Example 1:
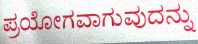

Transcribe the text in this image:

ಪ್ರಯೋಗವಾಗುವುದನ್ನು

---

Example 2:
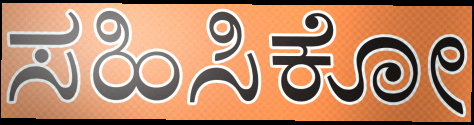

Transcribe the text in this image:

ಸಹಿಸಿಕೋ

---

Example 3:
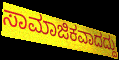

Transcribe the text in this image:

ಸಾಮಾಜಿಕವಾದದ್ದು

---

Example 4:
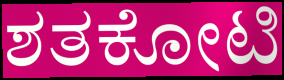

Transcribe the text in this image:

ಶತಕೋಟಿ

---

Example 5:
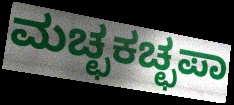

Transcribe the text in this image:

ಮಚ್ಛಕಚ್ಛಪಾ